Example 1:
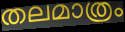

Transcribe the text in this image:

തലമാത്രം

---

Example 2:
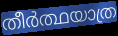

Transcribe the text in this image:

തീർത്ഥയാത്ര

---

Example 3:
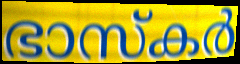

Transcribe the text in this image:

ഭാസ്കർ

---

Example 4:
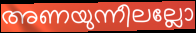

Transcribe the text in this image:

അണയുന്നീലല്ലോ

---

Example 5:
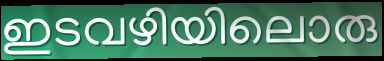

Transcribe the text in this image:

ഇടവഴിയിലൊരു